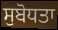
ਸੁਬੋਧਤਾ